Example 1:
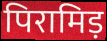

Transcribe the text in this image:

पिरामिड़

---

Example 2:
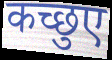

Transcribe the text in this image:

कच्छुए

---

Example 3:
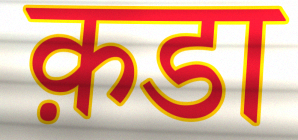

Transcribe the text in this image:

क़डा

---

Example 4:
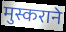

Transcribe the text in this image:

मुस्कराने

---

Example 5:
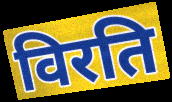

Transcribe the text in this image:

विरति